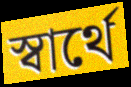
স্বার্থে